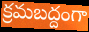
క్రమబద్దంగా